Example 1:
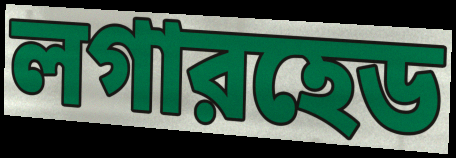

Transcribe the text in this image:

লগারহেড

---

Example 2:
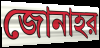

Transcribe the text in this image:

জোনাহর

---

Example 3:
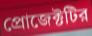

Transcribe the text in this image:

প্রোজেক্টটির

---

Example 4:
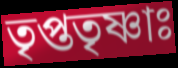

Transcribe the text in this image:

তৃপ্ততৃষ্ণাঃ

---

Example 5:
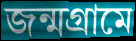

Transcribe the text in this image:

জন্মগ্রামে